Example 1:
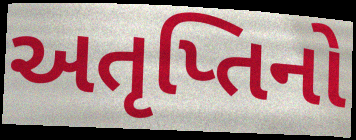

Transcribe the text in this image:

અતૃપ્તિનો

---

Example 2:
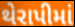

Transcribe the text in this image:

થેરાપીમાં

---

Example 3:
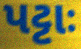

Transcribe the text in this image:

પટ્ટાઃ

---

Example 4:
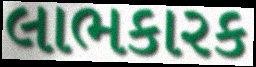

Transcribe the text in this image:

લાભકારક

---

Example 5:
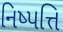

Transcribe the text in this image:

નિષ્પત્તિ